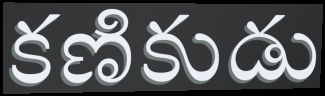
కణికుడు